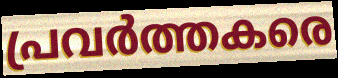
പ്രവർത്തകരെ